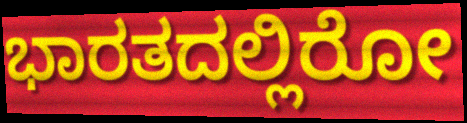
ಭಾರತದಲ್ಲಿರೋ